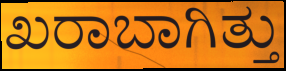
ಖರಾಬಾಗಿತ್ತು